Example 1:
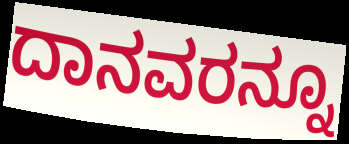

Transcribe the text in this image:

ದಾನವರನ್ನೂ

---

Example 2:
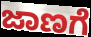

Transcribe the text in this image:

ಜಾಣಗೆ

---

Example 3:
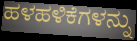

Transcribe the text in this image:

ಹಳಹಳಿಕೆಗಳನ್ನು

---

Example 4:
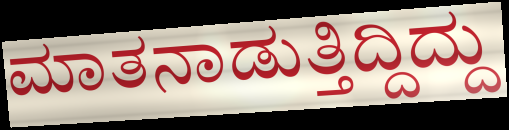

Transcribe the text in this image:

ಮಾತನಾಡುತ್ತಿದ್ದಿದ್ದು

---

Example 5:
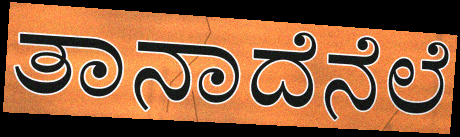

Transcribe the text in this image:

ತಾನಾದೆನೆಲೆ